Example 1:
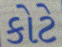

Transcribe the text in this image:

કોટે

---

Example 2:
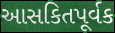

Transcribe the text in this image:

આસકિતપૂર્વક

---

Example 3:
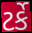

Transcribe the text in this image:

ટર્કે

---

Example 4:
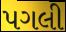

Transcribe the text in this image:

પગલી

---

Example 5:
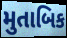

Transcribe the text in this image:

મુતાબિક